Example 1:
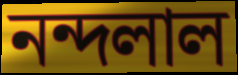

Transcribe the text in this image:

নন্দলাল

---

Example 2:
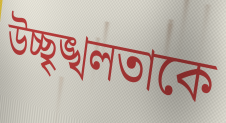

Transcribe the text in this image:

উচ্ছৃঙ্খলতাকে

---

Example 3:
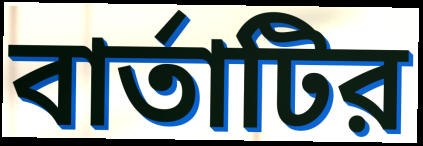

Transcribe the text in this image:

বার্তাটির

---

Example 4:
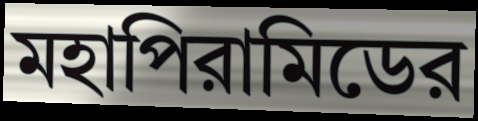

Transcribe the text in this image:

মহাপিরামিডের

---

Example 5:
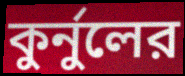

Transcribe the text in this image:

কুর্নুলের